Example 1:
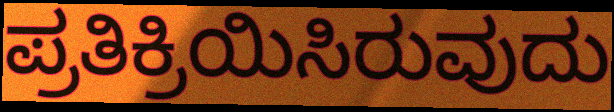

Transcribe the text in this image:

ಪ್ರತಿಕ್ರಿಯಿಸಿರುವುದು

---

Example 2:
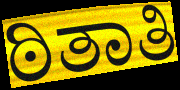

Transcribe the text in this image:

ಠಿತಾತಿ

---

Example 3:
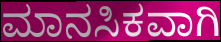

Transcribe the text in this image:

ಮಾನಸಿಕವಾಗಿ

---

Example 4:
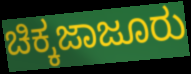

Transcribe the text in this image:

ಚಿಕ್ಕಜಾಜೂರು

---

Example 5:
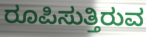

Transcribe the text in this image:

ರೂಪಿಸುತ್ತಿರುವ